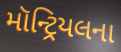
મૉન્ટ્રિયલના